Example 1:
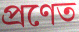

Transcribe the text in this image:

প্ৰণেত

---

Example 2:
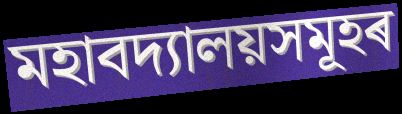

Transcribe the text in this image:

মহাবদ্যালয়সমূহৰ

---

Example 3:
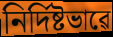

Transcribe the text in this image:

নিৰ্দিষ্টভাৱে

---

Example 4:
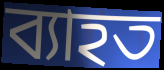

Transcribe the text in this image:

ব্যাহত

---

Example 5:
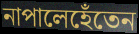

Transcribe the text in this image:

নাপালেহেঁতেন